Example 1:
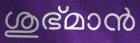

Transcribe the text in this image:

ശുഭ്മാൻ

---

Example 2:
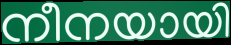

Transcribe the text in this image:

നീനയായി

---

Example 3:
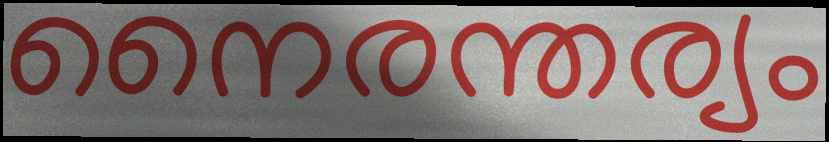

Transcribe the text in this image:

നൈരന്തര്യം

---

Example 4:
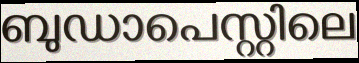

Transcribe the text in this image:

ബുഡാപെസ്റ്റിലെ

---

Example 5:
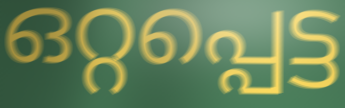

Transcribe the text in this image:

ഒറ്റപ്പെട്ട